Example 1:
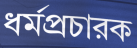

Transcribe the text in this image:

ধর্মপ্রচারক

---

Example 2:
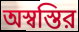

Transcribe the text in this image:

অস্বস্তির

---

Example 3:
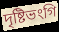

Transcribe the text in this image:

দৃষ্টিভংগি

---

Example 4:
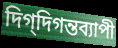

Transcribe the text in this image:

দিগ্‌দিগন্তব্যাপী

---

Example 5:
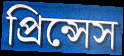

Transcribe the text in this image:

প্রিন্সেস